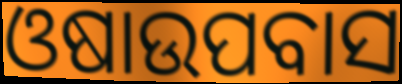
ଓଷାଉପବାସ